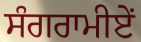
ਸੰਗਰਾਮੀਏਂ